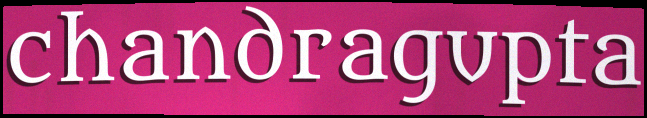
chandragupta